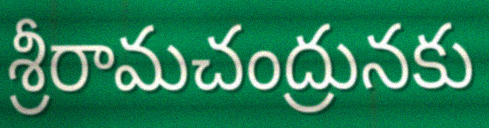
శ్రీరామచంద్రునకు